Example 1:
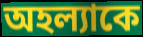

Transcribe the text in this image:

অহল্যাকে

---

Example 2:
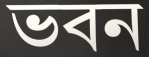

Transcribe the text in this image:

ভবন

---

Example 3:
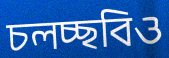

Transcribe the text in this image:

চলচ্ছবিও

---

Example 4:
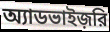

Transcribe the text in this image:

অ্যাডভাইজ়রি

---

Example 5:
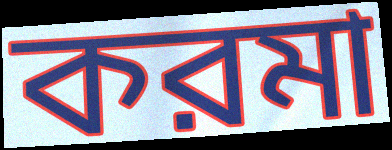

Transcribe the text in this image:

করমা